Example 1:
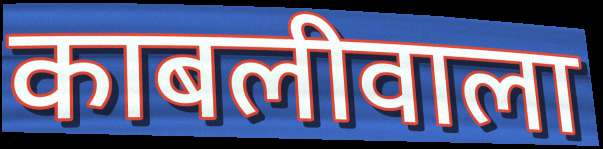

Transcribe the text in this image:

काबलीवाला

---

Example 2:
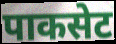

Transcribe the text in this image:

पाकसेट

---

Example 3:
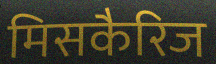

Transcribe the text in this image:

मिसकैरिज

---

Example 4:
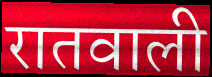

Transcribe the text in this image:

रातवाली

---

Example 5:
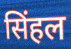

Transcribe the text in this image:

सिंहल